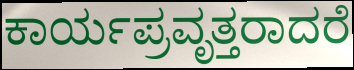
ಕಾರ್ಯಪ್ರವೃತ್ತರಾದರೆ